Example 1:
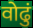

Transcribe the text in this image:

वोढुं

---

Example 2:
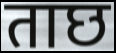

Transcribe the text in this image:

ताछ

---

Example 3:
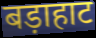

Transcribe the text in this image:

बड़ाहाट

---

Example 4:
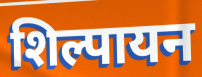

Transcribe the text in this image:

शिल्पायन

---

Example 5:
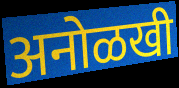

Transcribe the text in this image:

अनोळखी